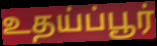
உதய்ப்பூர்